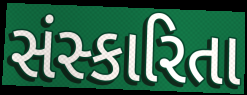
સંસ્કારિતા